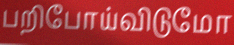
பறிபோய்விடுமோ